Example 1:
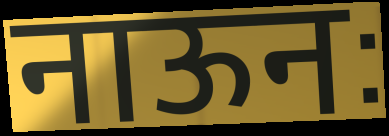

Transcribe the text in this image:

नाऊनः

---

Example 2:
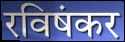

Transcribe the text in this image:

रविषंकर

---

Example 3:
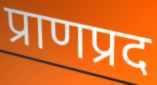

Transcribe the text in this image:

प्राणप्रद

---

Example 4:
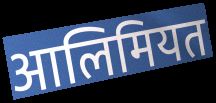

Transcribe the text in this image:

आलिमियत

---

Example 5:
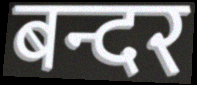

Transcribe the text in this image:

बन्दर